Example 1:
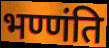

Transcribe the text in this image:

भण्णंति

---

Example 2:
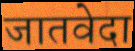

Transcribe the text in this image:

जातवेदा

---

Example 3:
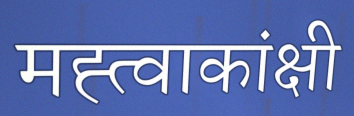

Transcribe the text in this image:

मह्त्वाकांक्षी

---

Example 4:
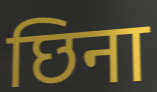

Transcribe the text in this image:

छिना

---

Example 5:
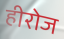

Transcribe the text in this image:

हीरोज